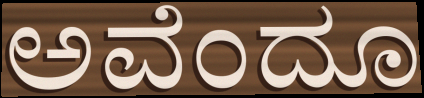
ಅವೆಂದೂ